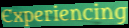
Experiencing